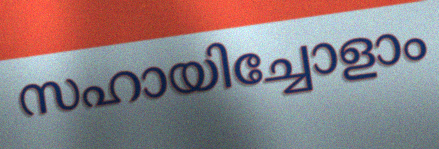
സഹായിച്ചോളാം